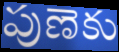
పుణెకు